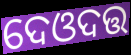
ଦେଓଦତ୍ତ